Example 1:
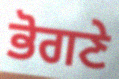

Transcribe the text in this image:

ਭੋਗਣੇ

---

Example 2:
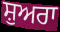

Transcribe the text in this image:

ਸ਼ੁਅਰਾ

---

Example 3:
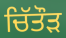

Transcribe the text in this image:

ਚਿੱਤੌੜ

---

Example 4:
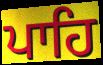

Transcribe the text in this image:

ਪਾਹਿ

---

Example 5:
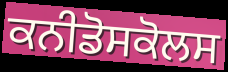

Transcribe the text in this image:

ਕਨੀਡੋਸਕੋਲਸ